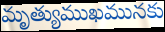
మృత్యుముఖమునకు